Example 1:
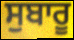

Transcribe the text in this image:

ਸੁਬਾਰੂ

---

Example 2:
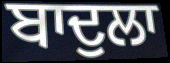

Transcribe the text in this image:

ਬਾਦੁਲਾ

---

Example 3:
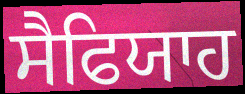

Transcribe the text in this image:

ਸੈਫਿਯਾਹ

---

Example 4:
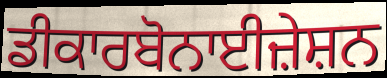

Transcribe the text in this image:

ਡੀਕਾਰਬੋਨਾਈਜ਼ੇਸ਼ਨ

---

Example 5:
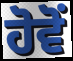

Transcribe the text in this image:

ਹੋਵੋਂ